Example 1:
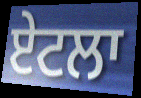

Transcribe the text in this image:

ਏਟਲਾ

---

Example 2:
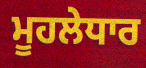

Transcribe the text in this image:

ਮੂਹਲੇਧਾਰ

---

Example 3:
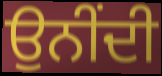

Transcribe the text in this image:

ਉਨੀਂਦੀ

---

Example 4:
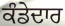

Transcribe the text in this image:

ਕੰਡੇਦਾਰ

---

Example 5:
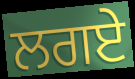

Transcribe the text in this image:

ਲਗਏ